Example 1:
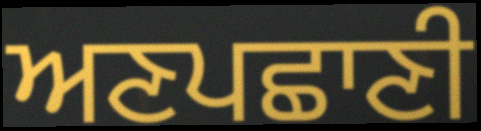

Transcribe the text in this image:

ਅਣਪਛਾਣੀ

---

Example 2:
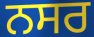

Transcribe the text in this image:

ਨਸਰ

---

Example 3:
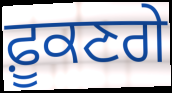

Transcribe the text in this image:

ਫ਼ੂਕਣਗੇ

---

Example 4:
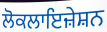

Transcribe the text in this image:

ਲੋਕਲਾਇਜ਼ੇਸ਼ਨ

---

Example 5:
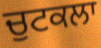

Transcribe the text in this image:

ਚੁਟਕਲਾ